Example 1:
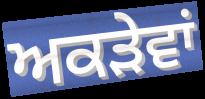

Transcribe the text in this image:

ਅਕੜੇਵਾਂ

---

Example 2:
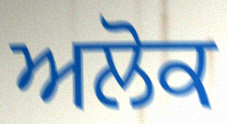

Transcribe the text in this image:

ਅਲੋਕ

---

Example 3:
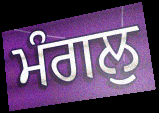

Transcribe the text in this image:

ਮੰਗਲੁ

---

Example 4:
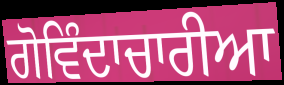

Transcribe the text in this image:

ਗੋਵਿੰਦਾਚਾਰੀਆ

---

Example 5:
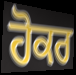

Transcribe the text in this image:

ਹੋਕਰ